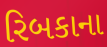
રિબકાના